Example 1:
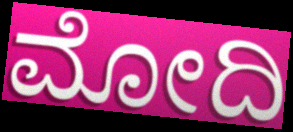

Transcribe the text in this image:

ಮೋದಿ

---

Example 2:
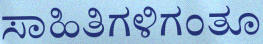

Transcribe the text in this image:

ಸಾಹಿತಿಗಳಿಗಂತೂ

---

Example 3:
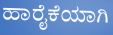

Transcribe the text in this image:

ಹಾರೈಕೆಯಾಗಿ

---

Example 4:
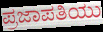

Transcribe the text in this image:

ಪ್ರಜಾಪತಿಯು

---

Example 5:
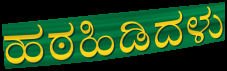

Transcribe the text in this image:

ಹಠಹಿಡಿದಳು